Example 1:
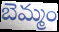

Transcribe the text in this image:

బెమ్మం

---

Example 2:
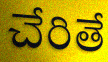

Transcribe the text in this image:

చేరితే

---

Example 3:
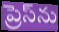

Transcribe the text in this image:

ప్రెస్‌ను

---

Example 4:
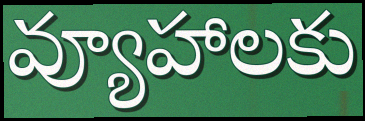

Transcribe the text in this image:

వ్యూహాలకు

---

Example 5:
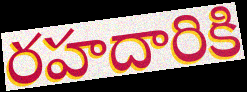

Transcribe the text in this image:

రహదారికి